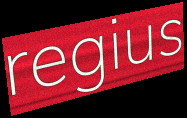
regius